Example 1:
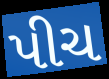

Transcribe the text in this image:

પીચ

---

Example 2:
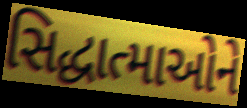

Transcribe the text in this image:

સિદ્ધાત્માઓને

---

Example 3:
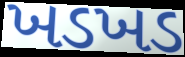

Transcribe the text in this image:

ખડખડ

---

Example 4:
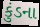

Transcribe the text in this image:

કુંડના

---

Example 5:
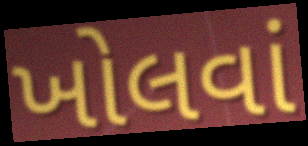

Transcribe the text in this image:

ખોલવાં